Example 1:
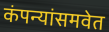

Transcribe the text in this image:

कंपन्यांसमवेत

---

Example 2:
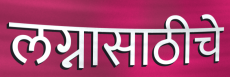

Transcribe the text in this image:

लग्नासाठीचे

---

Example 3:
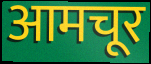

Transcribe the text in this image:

आमचूर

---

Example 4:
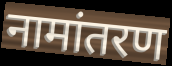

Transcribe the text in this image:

नामांतरण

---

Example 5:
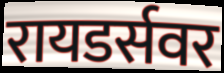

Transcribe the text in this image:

रायडर्सवर